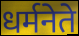
धर्मनेते